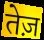
तेज़